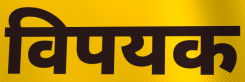
विपयक